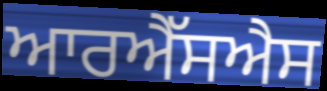
ਆਰਐੱਸਐਸ